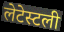
लेटेस्टली